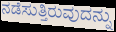
ನಡೆಸುತ್ತಿರುವುದನ್ನು